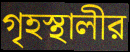
গৃহস্থালীর